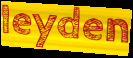
Ieyden